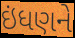
ઇંધણને